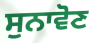
ਸੁਨਾਵੋਣ